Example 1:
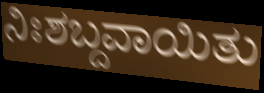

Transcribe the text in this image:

ನಿಃಶಬ್ದವಾಯಿತು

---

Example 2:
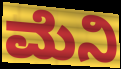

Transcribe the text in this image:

ಮೆನಿ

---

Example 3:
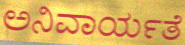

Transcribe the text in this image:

ಅನಿವಾರ್ಯತೆ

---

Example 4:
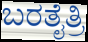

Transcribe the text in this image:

ಬರತೈತ್ರಿ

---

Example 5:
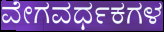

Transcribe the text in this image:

ವೇಗವರ್ಧಕಗಳ